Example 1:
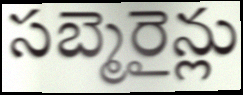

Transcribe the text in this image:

సబ్మెరైన్లు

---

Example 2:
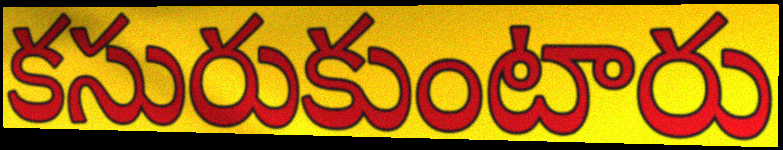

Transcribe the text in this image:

కసురుకుంటారు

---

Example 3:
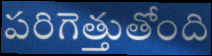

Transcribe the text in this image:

పరిగెత్తుతోంది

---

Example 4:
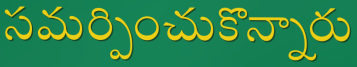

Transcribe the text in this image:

సమర్పించుకొన్నారు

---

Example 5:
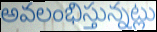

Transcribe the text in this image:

అవలంభిస్తున్నట్లు